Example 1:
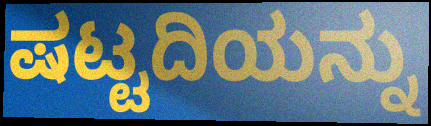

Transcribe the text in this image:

ಷಟ್ಟದಿಯನ್ನು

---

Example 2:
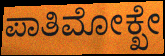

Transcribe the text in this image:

ಪಾತಿಮೋಕ್ಖೇ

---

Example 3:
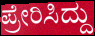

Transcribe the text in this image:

ಪ್ರೇರಿಸಿದ್ದು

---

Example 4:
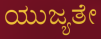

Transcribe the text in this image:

ಯುಜ್ಯತೇ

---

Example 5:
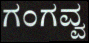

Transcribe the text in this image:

ಗಂಗವ್ವ